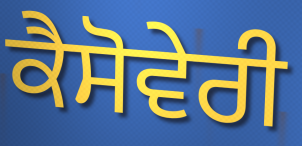
ਕੈਸੋਵੇਰੀ